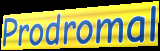
Prodromal